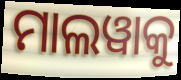
ମାଲୱାକୁ